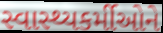
સ્વાસ્થ્યકર્મીઓને